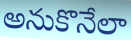
అనుకొనేలా